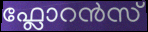
ഫ്ലോറൻസ്